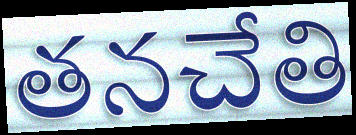
తనచేతి